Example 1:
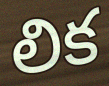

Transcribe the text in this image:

లిక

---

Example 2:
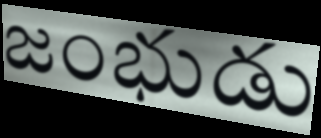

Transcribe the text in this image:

జంభుడు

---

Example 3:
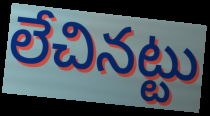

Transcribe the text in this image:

లేచినట్టు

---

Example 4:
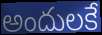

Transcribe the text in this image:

అందులకే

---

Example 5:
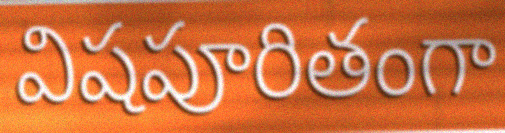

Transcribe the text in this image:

విషపూరితంగా